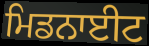
ਮਿਡਨਾਈਟ